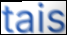
tais